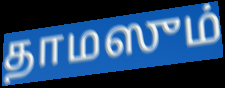
தாமஸும்